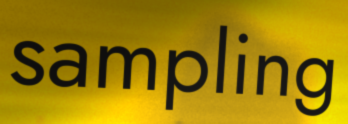
sampling